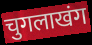
चुगलाखंग